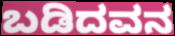
ಬಡಿದವನ